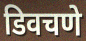
डिवचणे